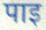
पाइ